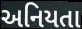
અનિયતા